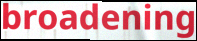
broadening